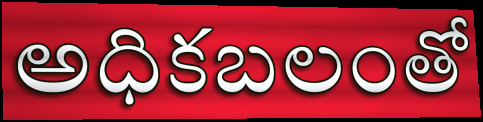
అధికబలంతో